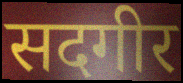
सदगीर